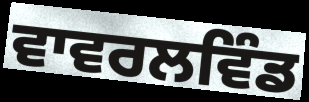
ਵਾਵਰਲਵਿੰਡ